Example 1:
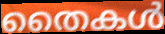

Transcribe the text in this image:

തൈകൾ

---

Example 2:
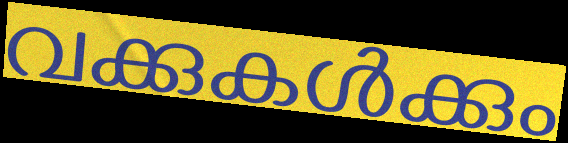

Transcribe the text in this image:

വക്കുകൾക്കും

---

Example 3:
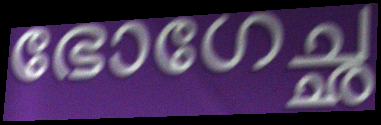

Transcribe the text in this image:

ഭോഗേച്ഛ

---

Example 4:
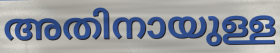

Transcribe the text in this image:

അതിനായുള്ള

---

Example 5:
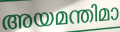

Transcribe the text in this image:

അയമന്തിമാ